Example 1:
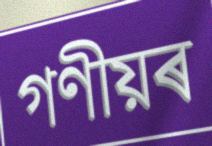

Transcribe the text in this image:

গণীয়ৰ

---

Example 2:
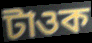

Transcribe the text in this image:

টাওক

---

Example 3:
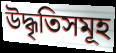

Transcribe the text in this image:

উদ্ধৃতিসমূহ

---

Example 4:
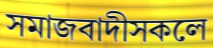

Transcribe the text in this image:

সমাজবাদীসকলে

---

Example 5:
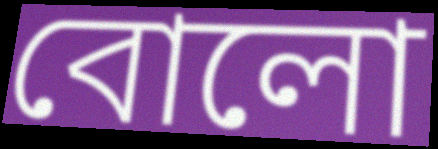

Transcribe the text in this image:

বোলো